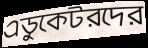
এডুকেটরদের